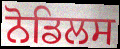
ਨੋਡਿਲਸ